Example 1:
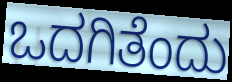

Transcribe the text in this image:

ಒದಗಿತೆಂದು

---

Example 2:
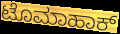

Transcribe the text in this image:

ಟೊಮಾಹಾಕ್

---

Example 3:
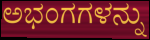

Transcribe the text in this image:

ಅಭಂಗಗಳನ್ನು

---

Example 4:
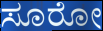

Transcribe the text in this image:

ಸೂರೋ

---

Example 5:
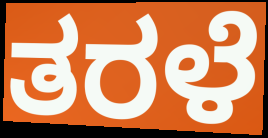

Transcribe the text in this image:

ತರಳೆ